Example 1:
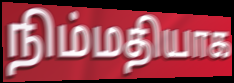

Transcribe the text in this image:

நிம்மதியாக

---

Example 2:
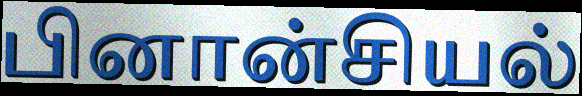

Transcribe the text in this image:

பினான்சியல்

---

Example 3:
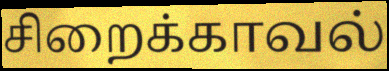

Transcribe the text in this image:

சிறைக்காவல்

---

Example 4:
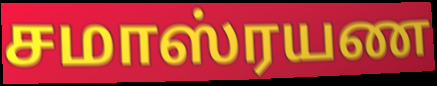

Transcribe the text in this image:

சமாஸ்ரயண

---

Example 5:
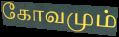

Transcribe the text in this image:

கோவமும்